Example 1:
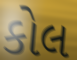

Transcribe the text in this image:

કોલ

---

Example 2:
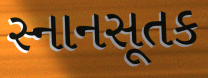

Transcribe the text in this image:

સ્નાનસૂતક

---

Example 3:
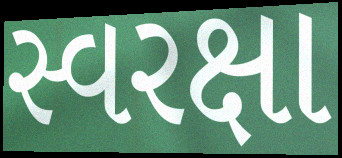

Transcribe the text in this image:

સ્વરક્ષા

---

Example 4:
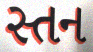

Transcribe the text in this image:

સ્તન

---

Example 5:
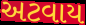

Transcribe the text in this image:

અટવાય